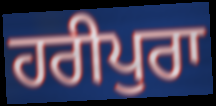
ਹਰੀਪੁਰਾ